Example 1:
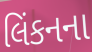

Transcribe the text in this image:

લિંકનના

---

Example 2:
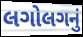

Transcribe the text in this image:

લગોલગનું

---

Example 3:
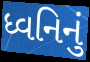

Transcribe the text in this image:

ધ્વનિનું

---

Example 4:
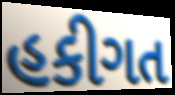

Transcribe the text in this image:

હકીગત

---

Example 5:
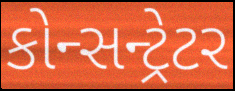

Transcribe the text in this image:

કોન્સન્ટ્રેટર